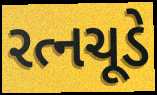
રત્નચૂડે